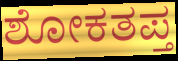
ಶೋಕತಪ್ತ